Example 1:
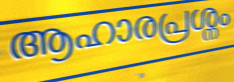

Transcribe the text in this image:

ആഹാരപ്രശ്നം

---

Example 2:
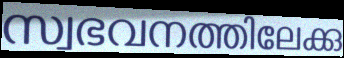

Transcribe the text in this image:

സ്വഭവനത്തിലേക്കു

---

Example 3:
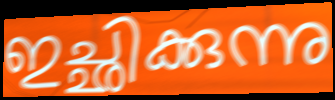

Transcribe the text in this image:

ഇച്ഛിക്കുന്നു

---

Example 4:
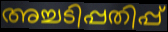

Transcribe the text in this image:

അച്ചടിപ്പതിപ്പ്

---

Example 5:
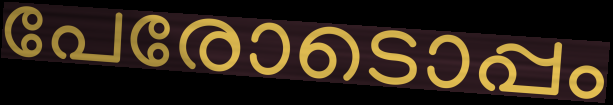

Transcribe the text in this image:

പേരോടൊപ്പം